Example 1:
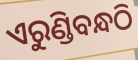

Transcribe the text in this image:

ଏରୁଣ୍ଡିବନ୍ଧଠି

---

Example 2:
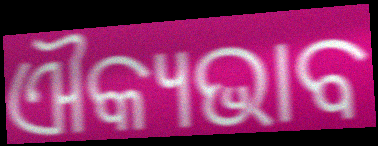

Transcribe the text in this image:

ଐକ୍ୟଭାବ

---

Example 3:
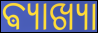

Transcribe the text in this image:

ଵ୍ଯାଖ୍ଯା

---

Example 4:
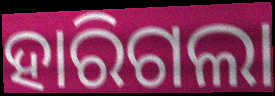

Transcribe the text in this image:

ହାରିଗଲା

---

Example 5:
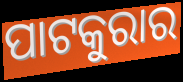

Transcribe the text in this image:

ପାଟକୁରାର